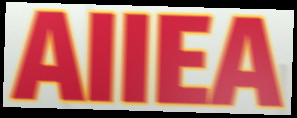
AIIEA